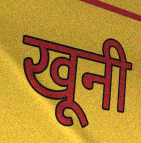
खूनी